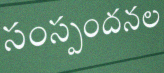
సంస్పందనల